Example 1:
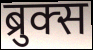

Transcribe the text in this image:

ब्रुक्‍स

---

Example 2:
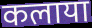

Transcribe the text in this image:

कलाया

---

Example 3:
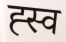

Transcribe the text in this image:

ह्स्व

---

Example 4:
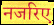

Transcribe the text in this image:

नजरिए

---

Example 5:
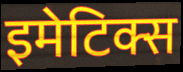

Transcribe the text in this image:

इमेटिक्स